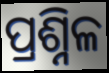
ପ୍ରଶ୍ନିଳ